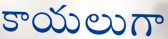
కాయలుగా